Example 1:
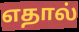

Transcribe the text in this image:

எதால்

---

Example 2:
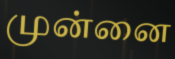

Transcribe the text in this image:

முன்னை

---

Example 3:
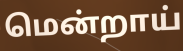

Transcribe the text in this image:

மென்றாய்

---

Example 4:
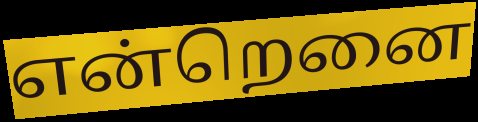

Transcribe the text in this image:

என்றெனை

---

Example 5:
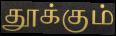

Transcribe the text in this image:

தூக்கும்